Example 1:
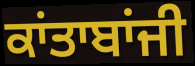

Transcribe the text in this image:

ਕਾਂਤਾਬਾਂਜੀ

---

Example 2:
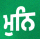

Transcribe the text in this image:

ਮੁਨਿ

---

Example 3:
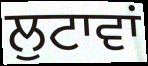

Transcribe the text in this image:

ਲੁਟਾਵਾਂ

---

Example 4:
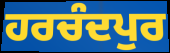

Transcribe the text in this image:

ਹਰਚੰਦਪੁਰ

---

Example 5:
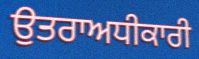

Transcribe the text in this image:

ਉਤਰਾਅਧੀਕਾਰੀ